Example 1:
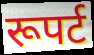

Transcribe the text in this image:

रूपर्ट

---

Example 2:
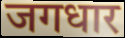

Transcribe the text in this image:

जगधार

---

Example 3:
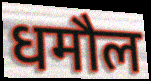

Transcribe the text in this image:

धमौल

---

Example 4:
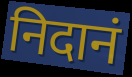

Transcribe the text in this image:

निदानं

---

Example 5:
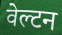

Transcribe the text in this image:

वेल्टन